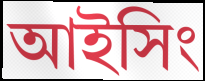
আইসিং